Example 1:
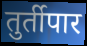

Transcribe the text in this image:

तुर्तीपार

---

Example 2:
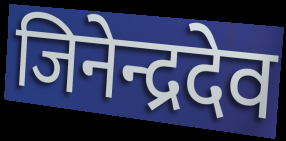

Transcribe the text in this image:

जिनेन्द्रदेव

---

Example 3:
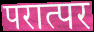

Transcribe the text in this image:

परात्पर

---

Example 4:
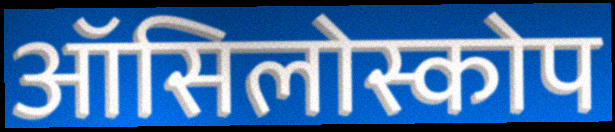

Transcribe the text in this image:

ऑसिलोस्कोप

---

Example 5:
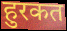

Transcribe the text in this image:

हुरकत